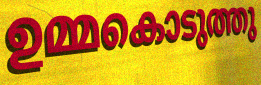
ഉമ്മകൊടുത്തു